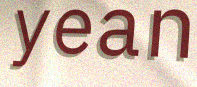
yean